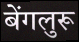
बेंगलुरू